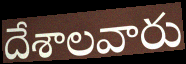
దేశాలవారు